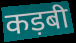
कड़बी